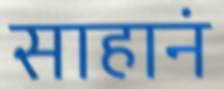
साहानं